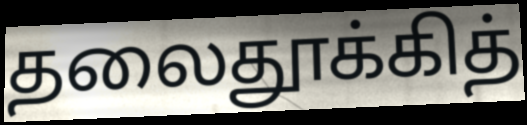
தலைதூக்கித்